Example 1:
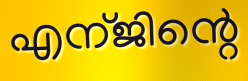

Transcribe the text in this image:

എന്ജിന്റെ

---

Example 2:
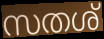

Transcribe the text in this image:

സതശ്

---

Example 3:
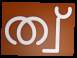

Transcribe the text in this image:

ത്വ്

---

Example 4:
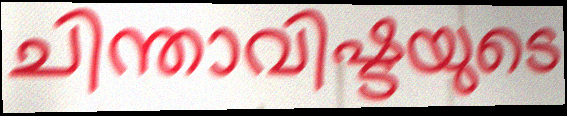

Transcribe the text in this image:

ചിന്താവിഷ്ടയുടെ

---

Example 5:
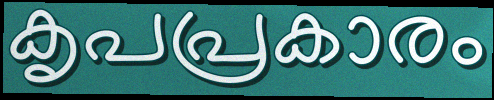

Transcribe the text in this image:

കൃപപ്രകാരം